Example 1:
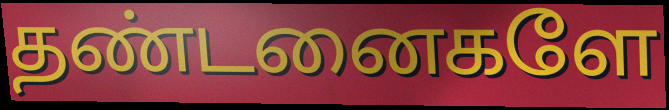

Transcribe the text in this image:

தண்டனைகளே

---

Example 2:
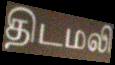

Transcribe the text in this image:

திடமலி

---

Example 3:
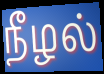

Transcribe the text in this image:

நீழல்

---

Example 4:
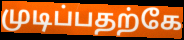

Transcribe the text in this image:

முடிப்பதற்கே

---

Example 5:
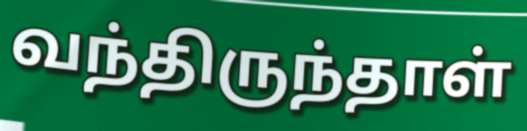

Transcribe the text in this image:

வந்திருந்தாள்